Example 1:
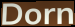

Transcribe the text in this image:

Dorn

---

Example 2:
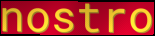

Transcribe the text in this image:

nostro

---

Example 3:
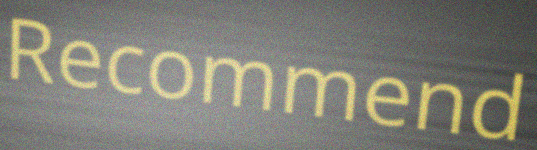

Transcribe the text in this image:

Recommend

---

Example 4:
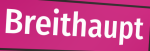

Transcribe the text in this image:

Breithaupt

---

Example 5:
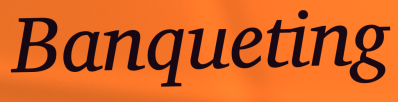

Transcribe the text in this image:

Banqueting